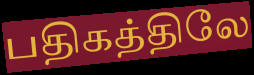
பதிகத்திலே